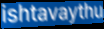
ishtavaythu